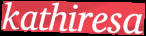
kathiresa